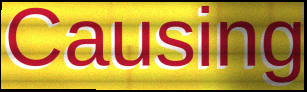
Causing